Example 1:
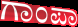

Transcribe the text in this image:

ಗಾಂಪಾ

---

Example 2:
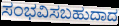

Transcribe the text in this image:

ಸಂಭವಿಸಬಹುದಾದ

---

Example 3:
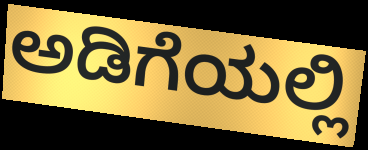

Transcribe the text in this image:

ಅಡಿಗೆಯಲ್ಲಿ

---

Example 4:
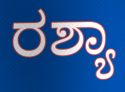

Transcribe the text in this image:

ರಶ್ಯಾ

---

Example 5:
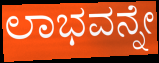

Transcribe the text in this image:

ಲಾಭವನ್ನೇ